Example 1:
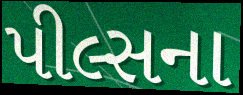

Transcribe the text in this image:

પીલ્સના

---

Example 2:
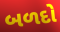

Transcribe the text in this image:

બળદો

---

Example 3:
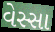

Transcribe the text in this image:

વેસ્સા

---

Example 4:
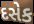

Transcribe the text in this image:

દસેક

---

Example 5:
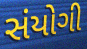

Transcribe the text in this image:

સંયોગી